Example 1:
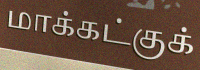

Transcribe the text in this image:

மாக்கட்குக்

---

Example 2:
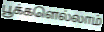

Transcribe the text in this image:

பூக்களெல்லாம்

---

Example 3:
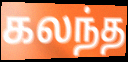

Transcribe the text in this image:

கலந்த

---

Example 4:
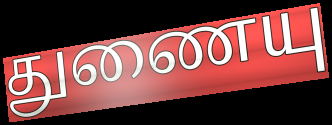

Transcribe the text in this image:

துணையு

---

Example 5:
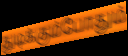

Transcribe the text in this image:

துடிக்கும்போதும்